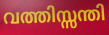
വത്തിസ്സന്തി